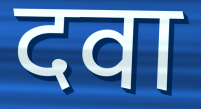
दवा